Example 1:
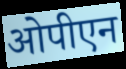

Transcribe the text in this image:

ओपीएन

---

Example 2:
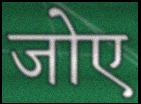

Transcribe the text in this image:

जोए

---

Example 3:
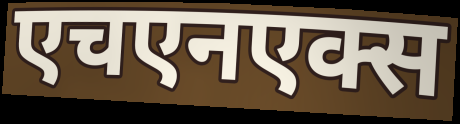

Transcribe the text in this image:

एचएनएक्स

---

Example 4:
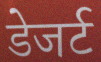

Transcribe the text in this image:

डेजर्ट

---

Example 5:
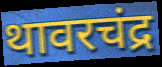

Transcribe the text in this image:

थावरचंद्र